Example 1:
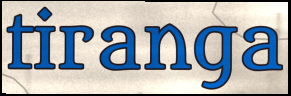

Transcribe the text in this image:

tiranga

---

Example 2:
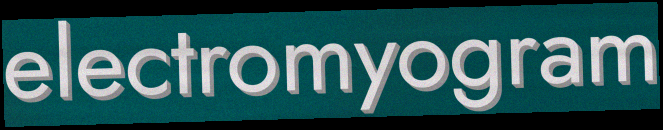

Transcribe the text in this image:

electromyogram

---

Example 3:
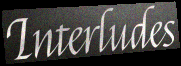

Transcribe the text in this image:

Interludes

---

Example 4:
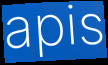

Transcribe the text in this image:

apis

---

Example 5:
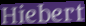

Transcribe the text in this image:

Hiebert